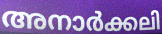
അനാർക്കലി